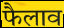
फैलाव